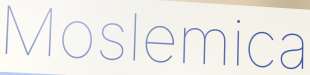
Moslemica